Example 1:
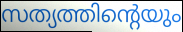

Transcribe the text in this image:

സത്യത്തിന്റെയും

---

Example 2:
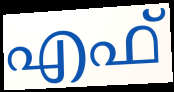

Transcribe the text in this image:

എഫ്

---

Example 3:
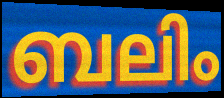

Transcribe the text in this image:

ബലിം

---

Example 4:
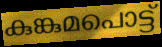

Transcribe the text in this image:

കുങ്കുമപൊട്ട്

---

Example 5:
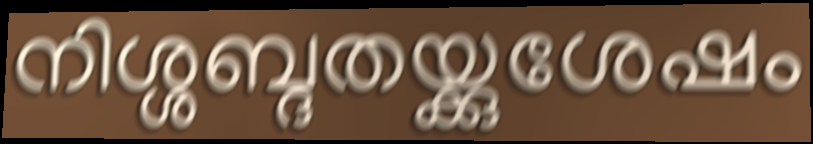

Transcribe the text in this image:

നിശ്ശബ്ദതയ്ക്കുശേഷം